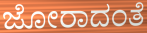
ಜೋರಾದಂತೆ